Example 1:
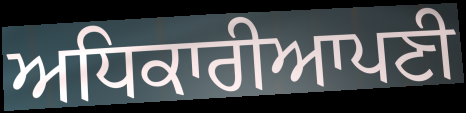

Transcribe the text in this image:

ਅਧਿਕਾਰੀਆਪਣੀ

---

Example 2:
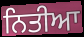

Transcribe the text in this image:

ਨਿਤੀਆ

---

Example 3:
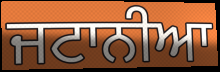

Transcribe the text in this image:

ਜਟਾਨੀਆ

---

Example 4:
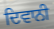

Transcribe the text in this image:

ਦਿਵਾਨੀ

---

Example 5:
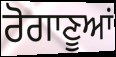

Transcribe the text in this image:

ਰੋਗਾਣੂਆਂ